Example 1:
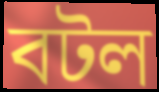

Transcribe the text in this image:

বটল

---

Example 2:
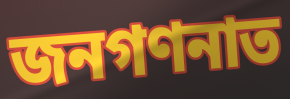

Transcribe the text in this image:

জনগণনাত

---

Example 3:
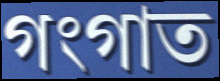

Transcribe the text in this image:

গংগাত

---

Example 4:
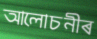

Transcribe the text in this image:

আলোচনীৰ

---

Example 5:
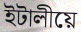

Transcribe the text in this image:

ইটালীয়ে